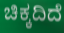
ಚಿಕ್ಕದಿದೆ